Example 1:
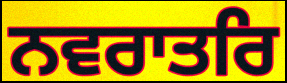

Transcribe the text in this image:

ਨਵਰਾਤਰਿ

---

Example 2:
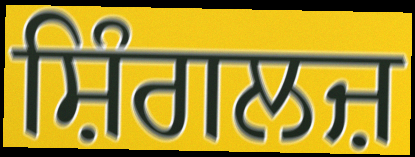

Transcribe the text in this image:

ਸ਼ਿੰਗਲਜ਼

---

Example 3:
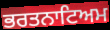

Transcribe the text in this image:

ਭਰਤਨਾਟਿਅਮ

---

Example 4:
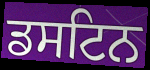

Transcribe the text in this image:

ਡਸਟਿਨ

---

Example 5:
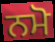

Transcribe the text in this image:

ਨਮੋ